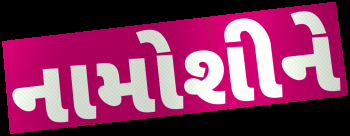
નામોશીને